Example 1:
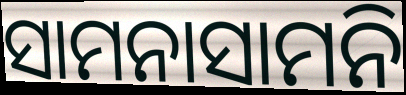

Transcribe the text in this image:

ସାମନାସାମନି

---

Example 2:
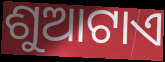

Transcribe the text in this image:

ଶୁଆଟାଏ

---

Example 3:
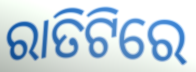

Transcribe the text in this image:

ରାତିଟିରେ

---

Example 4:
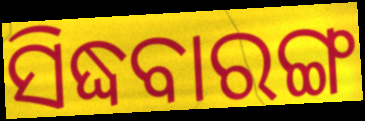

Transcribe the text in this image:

ସିଦ୍ଧବାରଙ୍ଗ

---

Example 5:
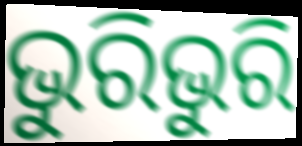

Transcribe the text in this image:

ଭୁରିଭୁରି